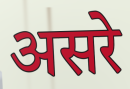
असरे